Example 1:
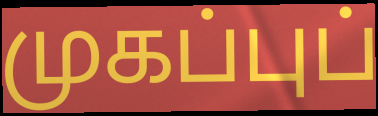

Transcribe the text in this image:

முகப்புப்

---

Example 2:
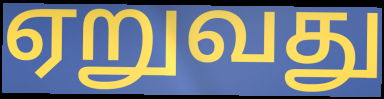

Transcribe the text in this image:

ஏறுவது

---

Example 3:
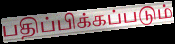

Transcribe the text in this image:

பதிப்பிக்கப்படும்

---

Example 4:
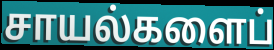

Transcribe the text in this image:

சாயல்களைப்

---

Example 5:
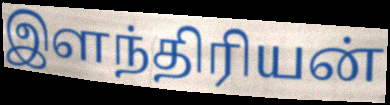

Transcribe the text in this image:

இளந்திரியன்